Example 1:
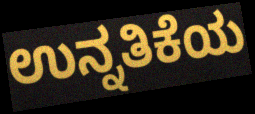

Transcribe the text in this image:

ಉನ್ನತಿಕೆಯ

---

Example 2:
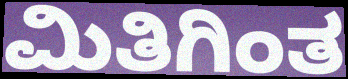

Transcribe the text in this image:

ಮಿತಿಗಿಂತ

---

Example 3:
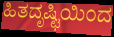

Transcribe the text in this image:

ಹಿತದೃಷ್ಟಿಯಿಂದ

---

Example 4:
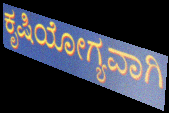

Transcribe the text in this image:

ಕೃಷಿಯೋಗ್ಯವಾಗಿ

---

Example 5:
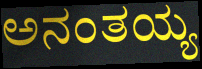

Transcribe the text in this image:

ಅನಂತಯ್ಯ